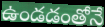
ఉండడంతోనే